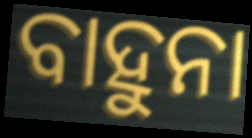
ବାହୁନା